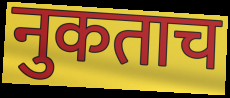
नुकताच